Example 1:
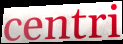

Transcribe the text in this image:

centri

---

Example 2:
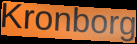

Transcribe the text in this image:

Kronborg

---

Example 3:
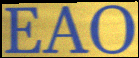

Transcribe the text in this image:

EAO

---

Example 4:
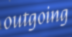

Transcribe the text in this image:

outgoing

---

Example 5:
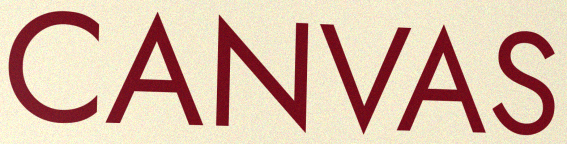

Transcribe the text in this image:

CANVAS